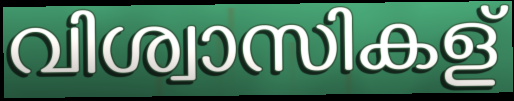
വിശ്വാസികള്